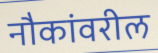
नौकांवरील